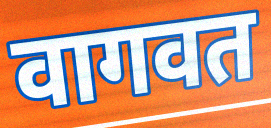
वागवत